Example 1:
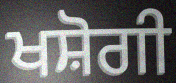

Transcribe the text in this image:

ਖਸ਼ੋਗੀ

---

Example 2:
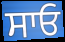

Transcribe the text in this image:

ਸਾਓ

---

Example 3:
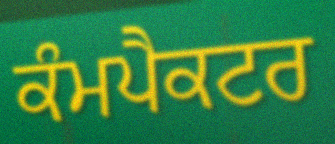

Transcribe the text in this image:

ਕੰਮਪੈਕਟਰ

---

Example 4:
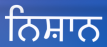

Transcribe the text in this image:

ਨਿਸ਼ਾਨ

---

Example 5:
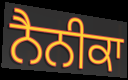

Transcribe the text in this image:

ਨੈਨੀਕਾ